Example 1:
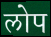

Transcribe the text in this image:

लोप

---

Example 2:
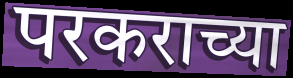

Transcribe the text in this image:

परकराच्या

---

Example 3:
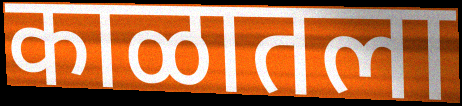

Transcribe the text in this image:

काळातला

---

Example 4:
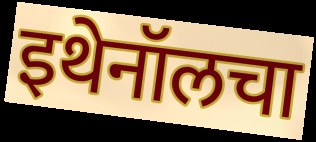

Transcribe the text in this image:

इथेनॉलचा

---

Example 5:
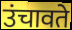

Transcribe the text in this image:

उंचावते